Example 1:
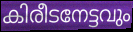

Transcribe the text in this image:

കിരീടനേട്ടവും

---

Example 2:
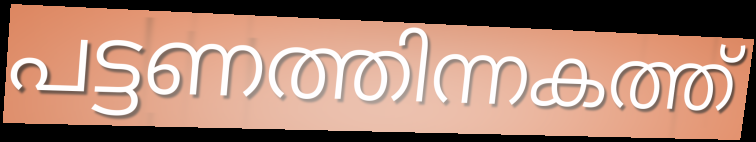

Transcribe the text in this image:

പട്ടണത്തിന്നകത്ത്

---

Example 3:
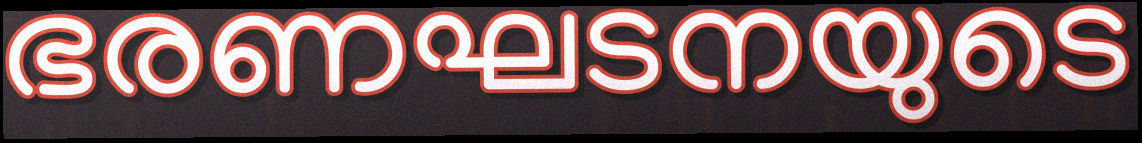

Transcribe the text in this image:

ഭരണഘടനയുടെ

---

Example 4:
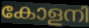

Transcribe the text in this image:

കോളനി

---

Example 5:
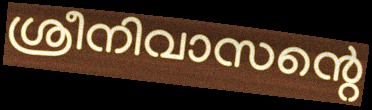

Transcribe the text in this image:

ശ്രീനിവാസന്റെ